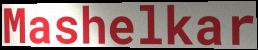
Mashelkar